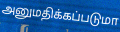
அனுமதிக்கப்படுமா